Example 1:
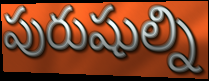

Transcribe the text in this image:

పురుషుల్ని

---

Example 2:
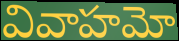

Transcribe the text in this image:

వివాహమో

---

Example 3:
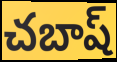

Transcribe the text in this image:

చబాష్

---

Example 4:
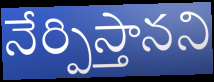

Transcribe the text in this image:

నేర్పిస్తానని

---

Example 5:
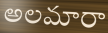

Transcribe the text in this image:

అలమారా